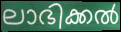
ലാഭിക്കൽ